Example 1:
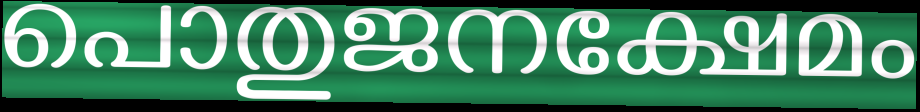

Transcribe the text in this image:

പൊതുജനക്ഷേമം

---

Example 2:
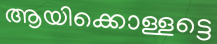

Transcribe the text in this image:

ആയിക്കൊള്ളട്ടെ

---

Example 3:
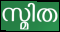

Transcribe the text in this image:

സ്മിത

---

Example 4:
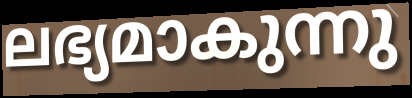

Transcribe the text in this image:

ലഭ്യമാകുന്നു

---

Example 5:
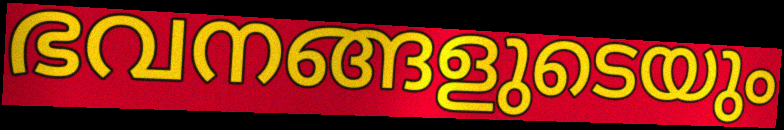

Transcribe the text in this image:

ഭവനങ്ങളുടെയും